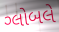
ગ્લોબલે